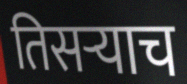
तिसर्‍याच